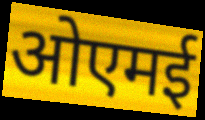
ओएमई